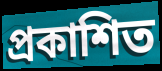
প্ৰকাশিত